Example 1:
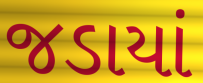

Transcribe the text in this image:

જડાયાં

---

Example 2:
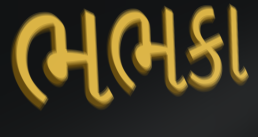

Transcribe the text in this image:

ભભકા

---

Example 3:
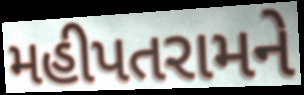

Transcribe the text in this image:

મહીપતરામને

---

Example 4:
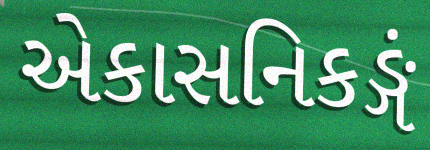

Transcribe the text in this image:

એકાસનિકઙ્ગં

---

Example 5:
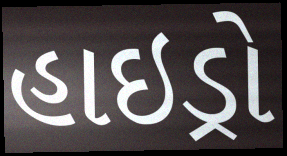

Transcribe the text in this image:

હાઇડ્રો